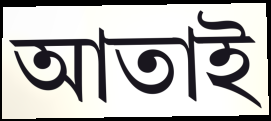
আতাই